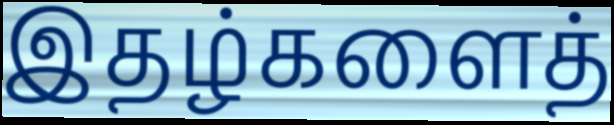
இதழ்களைத்